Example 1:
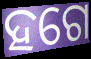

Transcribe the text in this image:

ହଗେ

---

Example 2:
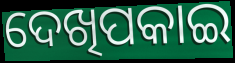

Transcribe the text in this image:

ଦେଖିପକାଇ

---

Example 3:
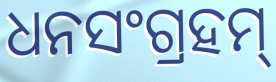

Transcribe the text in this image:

ଧନସଂଗ୍ରହମ୍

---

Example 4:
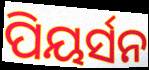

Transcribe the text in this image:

ପିୟର୍ସନ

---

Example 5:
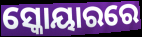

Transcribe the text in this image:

ସ୍କୋୟାରରେ